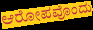
ಆರೋಪವೊಂದು